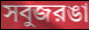
সবুজরঙা